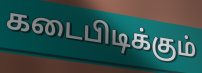
கடைபிடிக்கும்